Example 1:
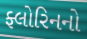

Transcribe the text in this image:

ફ્લોરિનનો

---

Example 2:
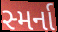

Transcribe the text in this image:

સ્મર્ના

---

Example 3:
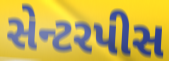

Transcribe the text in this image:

સેન્ટરપીસ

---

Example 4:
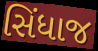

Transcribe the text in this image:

સિંધાજ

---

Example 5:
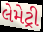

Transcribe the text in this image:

લેમેટ્રી